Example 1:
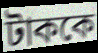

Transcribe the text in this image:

টাককে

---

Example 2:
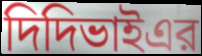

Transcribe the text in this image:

দিদিভাইএর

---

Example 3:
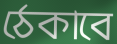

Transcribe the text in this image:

ঠেকাবে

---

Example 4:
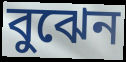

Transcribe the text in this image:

বুঝেন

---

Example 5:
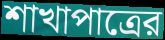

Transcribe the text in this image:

শাখাপাত্রের